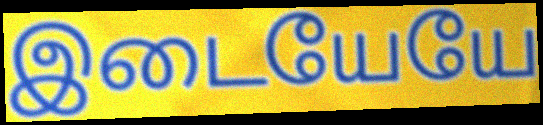
இடையேயே